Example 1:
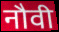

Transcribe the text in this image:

नौवी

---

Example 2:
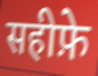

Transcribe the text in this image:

सहीफ़े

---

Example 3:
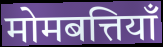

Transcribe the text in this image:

मोमबत्तियाँ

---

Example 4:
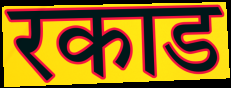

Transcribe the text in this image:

रकाड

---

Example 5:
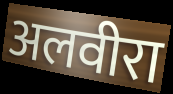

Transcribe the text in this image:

अलवीरा